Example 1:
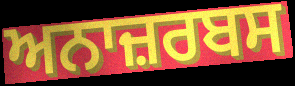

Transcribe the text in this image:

ਅਨਾਜ਼ਰਬਸ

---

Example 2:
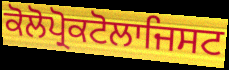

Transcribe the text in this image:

ਕੋਲੋਪ੍ਰੋਕਟੋਲਾਜਿਸਟ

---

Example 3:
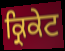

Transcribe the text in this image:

ਕ੍ਰਿਕੇਟ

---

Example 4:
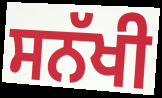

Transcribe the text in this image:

ਸਨੱਖੀ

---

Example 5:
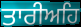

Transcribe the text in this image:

ਤਾਰੀਅਹਿ